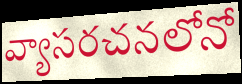
వ్యాసరచనలోనో